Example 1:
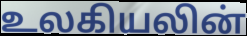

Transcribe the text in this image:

உலகியலின்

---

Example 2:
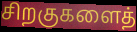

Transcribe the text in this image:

சிறகுகளைத்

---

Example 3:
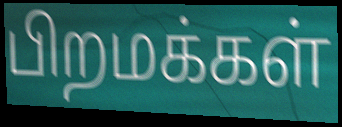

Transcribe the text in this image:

பிறமக்கள்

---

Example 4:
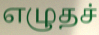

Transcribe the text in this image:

எழுதச்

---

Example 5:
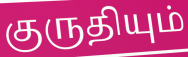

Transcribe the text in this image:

குருதியும்